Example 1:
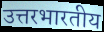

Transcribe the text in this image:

उत्तरभारतीय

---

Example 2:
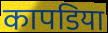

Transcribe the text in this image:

कापडिया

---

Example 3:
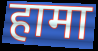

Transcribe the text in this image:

हामा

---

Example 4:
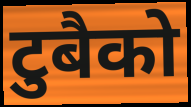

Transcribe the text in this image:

टुबैको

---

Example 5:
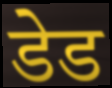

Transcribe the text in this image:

डेड